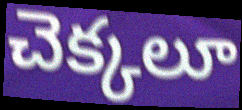
చెక్కలూ